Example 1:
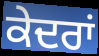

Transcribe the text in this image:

ਕੇਦਰਾਂ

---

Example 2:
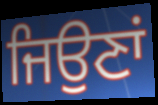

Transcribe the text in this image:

ਜਿਉਣਾਂ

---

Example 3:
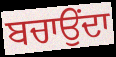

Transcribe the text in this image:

ਬਚਾਉਂਦਾ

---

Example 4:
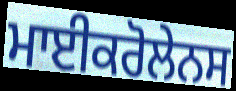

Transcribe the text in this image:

ਮਾਈਕਰੋਲੇਨਸ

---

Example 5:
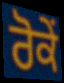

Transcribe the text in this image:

ਰੋਕੇਂ